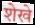
शेखे